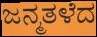
ಜನ್ಮತಳೆದ